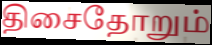
திசைதோறும்